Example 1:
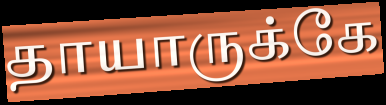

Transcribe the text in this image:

தாயாருக்கே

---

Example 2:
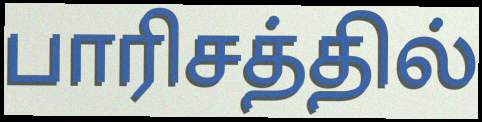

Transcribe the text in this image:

பாரிசத்தில்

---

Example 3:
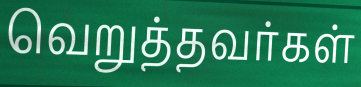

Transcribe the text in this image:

வெறுத்தவர்கள்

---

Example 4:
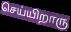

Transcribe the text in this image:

செய்யிறாரு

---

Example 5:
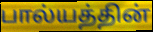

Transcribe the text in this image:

பால்யத்தின்